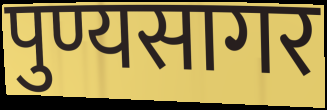
पुण्यसागर